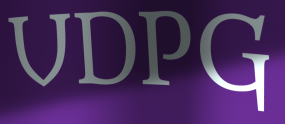
UDPG